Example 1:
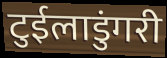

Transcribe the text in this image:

टुईलाडुंगरी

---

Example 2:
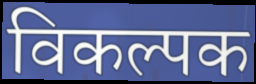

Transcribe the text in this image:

विकल्पक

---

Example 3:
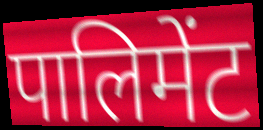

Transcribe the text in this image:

पालिमेंट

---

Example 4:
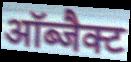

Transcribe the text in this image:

ऑब्जैक्ट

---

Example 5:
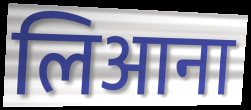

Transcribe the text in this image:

लिआना